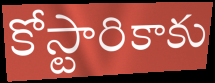
కోస్టారికాకు